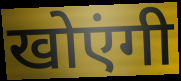
खोएंगी